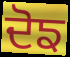
ਦੋਙ